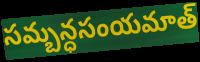
సమ్బన్ధసంయమాత్